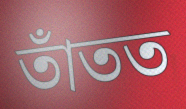
তাঁতত